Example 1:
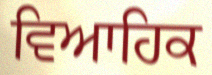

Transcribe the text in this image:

ਵਿਆਹਿਕ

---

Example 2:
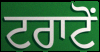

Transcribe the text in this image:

ਟਰਾਟੋਂ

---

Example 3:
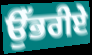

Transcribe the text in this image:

ਉੱਭਰੀਏ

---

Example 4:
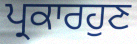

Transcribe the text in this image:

ਪ੍ਰਕਾਰਹੁਣ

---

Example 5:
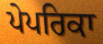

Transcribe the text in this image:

ਪੇਪਰਿਕਾ